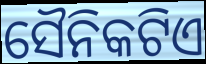
ସୈନିକଟିଏ